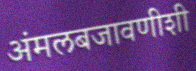
अंमलबजावणीशी